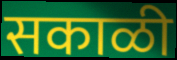
सकाळी